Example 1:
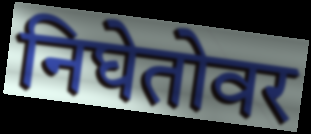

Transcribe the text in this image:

निघेतोवर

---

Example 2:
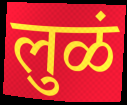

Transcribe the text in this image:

लुळं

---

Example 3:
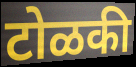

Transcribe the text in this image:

टोळकी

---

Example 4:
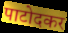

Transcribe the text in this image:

पाटोदकर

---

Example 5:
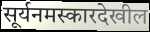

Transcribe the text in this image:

सूर्यनमस्कारदेखील